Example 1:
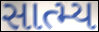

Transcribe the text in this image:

સાત્મ્ય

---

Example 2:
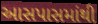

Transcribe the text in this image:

આસપાસમાંથી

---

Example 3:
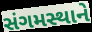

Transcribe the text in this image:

સંગમસ્થાને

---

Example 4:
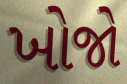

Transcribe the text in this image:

ખોજો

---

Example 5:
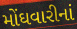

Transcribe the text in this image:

મોંઘવારીનાં